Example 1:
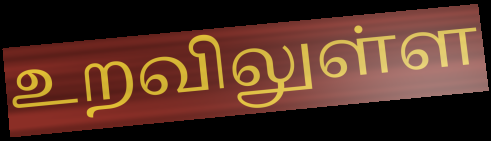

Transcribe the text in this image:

உறவிலுள்ள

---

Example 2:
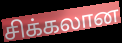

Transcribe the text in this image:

சிக்கலான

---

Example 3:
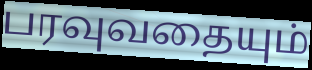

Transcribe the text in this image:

பரவுவதையும்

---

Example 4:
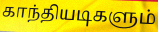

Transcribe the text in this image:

காந்தியடிகளும்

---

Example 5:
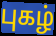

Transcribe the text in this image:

புகழ்